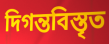
দিগন্তবিস্তৃত